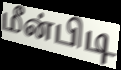
மீன்பிடி